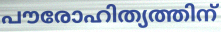
പൗരോഹിത്യത്തിന്